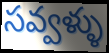
సవ్వళ్ళు